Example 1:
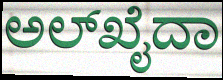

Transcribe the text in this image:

ಅಲ್‌ಖೈದಾ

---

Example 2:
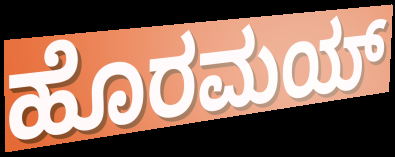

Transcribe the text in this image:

ಹೊರಮಯ್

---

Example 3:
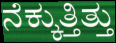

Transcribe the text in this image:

ನೆಕ್ಕುತ್ತಿತ್ತು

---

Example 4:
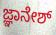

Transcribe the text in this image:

ಜ್ಞಾನೇಶ್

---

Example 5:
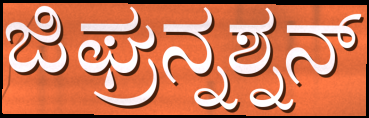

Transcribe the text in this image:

ಜಿಘ್ರನ್ನಶ್ನನ್